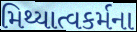
મિથ્યાત્વકર્મના